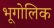
भूगोलिक